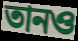
তানও